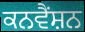
ਕਨਵੈੰਸ਼ਨ